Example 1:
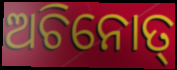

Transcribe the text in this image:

ଅଚିନୋତ୍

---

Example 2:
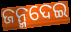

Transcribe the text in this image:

ଜନ୍ମଦେଇ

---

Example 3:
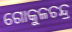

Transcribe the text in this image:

ଗୋକୁଳଚନ୍ଦ୍ର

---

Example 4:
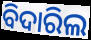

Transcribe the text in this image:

ବିଦାରିଲ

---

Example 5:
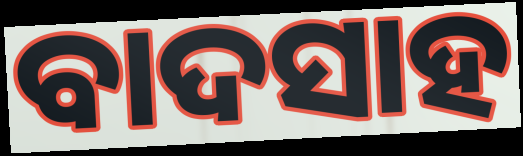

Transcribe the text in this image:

ବାଦସାହ